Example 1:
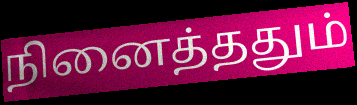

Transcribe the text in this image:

நினைத்ததும்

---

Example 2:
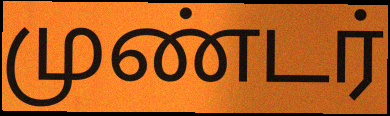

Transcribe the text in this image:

முண்டர்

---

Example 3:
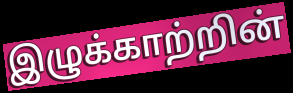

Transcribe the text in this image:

இழுக்காற்றின்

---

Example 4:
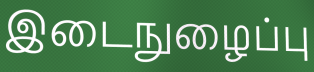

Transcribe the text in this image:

இடைநுழைப்பு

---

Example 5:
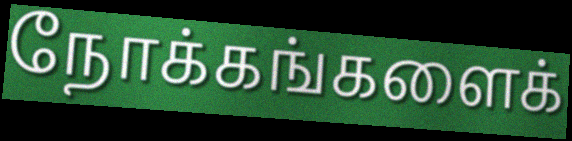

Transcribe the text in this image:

நோக்கங்களைக்